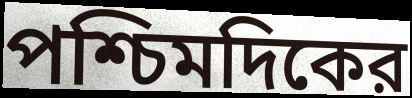
পশ্চিমদিকের